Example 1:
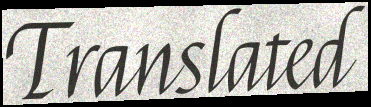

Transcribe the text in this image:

Translated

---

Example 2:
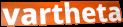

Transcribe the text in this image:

vartheta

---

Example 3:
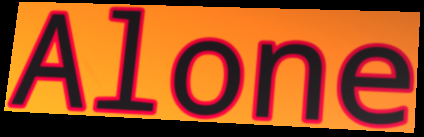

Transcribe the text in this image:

Alone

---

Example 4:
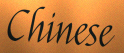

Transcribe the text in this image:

Chinese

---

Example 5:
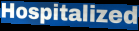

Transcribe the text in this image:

Hospitalized